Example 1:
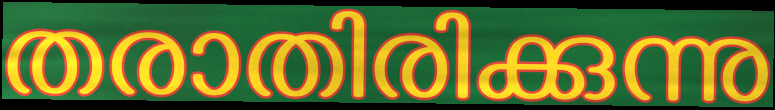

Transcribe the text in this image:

തരാതിരിക്കുന്നു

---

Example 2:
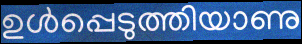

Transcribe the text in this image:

ഉൾപ്പെടുത്തിയാണു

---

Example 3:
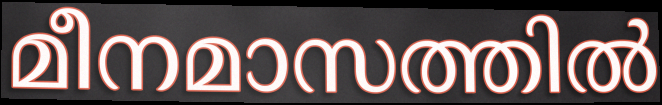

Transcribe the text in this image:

മീനമാസത്തിൽ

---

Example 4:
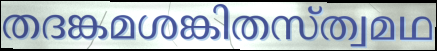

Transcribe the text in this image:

തദങ്കമശങ്കിതസ്ത്വമഥ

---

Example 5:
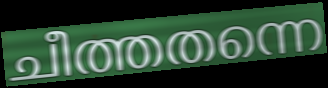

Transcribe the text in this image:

ചീത്തതന്നെ